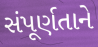
સંપૂર્ણતાને